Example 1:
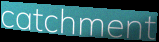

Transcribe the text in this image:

catchment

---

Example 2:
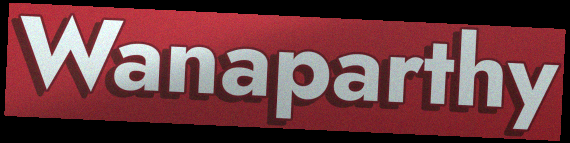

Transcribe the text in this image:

Wanaparthy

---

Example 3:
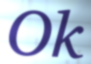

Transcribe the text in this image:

Ok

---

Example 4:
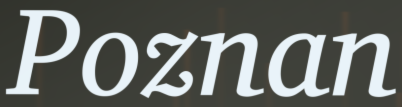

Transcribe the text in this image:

Poznan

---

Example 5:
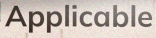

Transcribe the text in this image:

Applicable